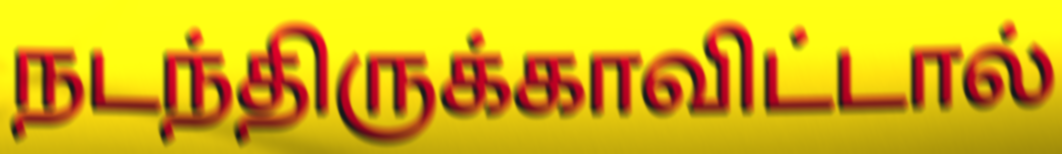
நடந்திருக்காவிட்டால்